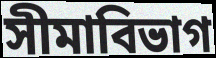
সীমাবিভাগ